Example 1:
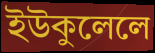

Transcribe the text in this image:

ইউকুলেলে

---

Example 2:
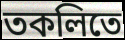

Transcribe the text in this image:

তকলিতে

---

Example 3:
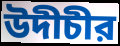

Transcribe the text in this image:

উদীচীর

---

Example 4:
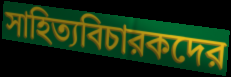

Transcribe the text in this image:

সাহিত্যবিচারকদের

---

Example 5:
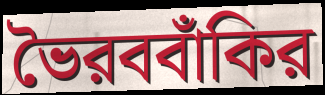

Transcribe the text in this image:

ভৈরববাঁকির